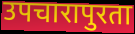
उपचारापुरता